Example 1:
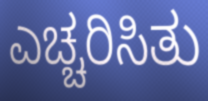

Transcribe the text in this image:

ಎಚ್ಚರಿಸಿತು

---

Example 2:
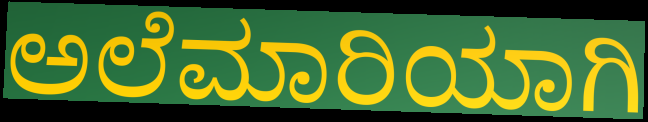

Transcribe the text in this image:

ಅಲೆಮಾರಿಯಾಗಿ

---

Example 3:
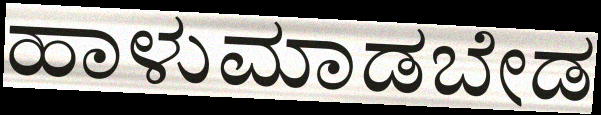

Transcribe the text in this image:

ಹಾಳುಮಾಡಬೇಡ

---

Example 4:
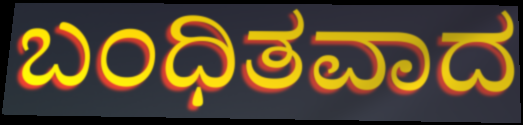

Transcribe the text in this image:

ಬಂಧಿತವಾದ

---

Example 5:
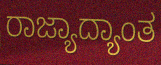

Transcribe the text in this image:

ರಾಜ್ಯಾದ್ಯಾಂತ